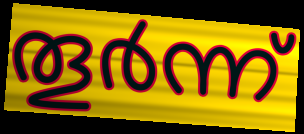
തൂർന്ന്